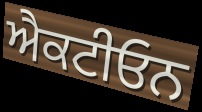
ਐਕਟੀਓਨ